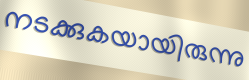
നടക്കുകയായിരുന്നു